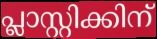
പ്ലാസ്റ്റിക്കിന്